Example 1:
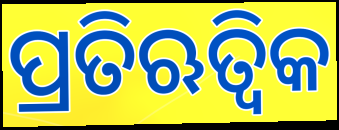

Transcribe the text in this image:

ପ୍ରତିଋତ୍ୱିକ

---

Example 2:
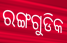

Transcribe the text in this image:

ରଙ୍ଗଗୁଡିକ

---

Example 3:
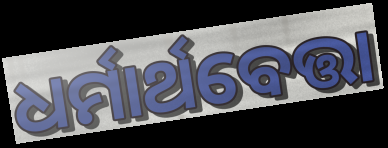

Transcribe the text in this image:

ଧର୍ମାର୍ଥବେତ୍ତା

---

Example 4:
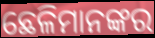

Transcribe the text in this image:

ଛେଳିମାନଙ୍କର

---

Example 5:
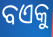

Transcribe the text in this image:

ବଏକୁ